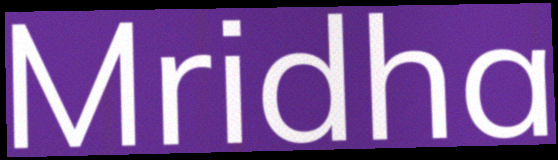
Mridha